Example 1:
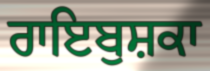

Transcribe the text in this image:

ਰਾਇਬੁਸ਼ਕਾ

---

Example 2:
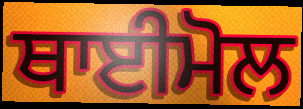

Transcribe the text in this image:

ਥਾਈਮੋਲ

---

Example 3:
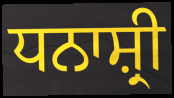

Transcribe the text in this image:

ਧਨਾਸ਼੍ਰੀ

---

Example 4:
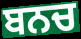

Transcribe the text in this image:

ਬਨਚ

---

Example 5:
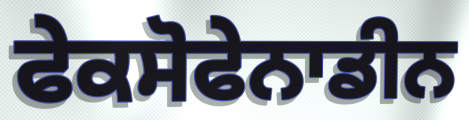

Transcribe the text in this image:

ਫੇਕਸੋਫੇਨਾਡੀਨ